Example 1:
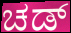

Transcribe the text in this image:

ಚಡ್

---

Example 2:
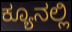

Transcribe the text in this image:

ಕ್ಯೂನಲ್ಲಿ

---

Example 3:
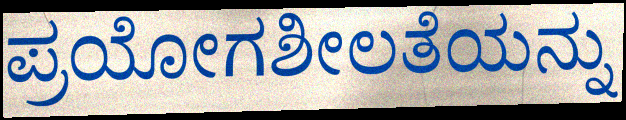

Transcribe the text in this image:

ಪ್ರಯೋಗಶೀಲತೆಯನ್ನು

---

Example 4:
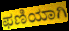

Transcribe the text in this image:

ಫಣಿಯಾಗಿ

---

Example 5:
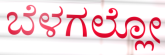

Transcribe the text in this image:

ಬೆಳಗಲ್ಲೋ